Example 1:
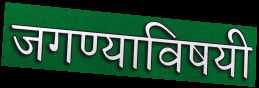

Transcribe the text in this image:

जगण्याविषयी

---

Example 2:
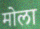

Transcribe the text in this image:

मोला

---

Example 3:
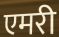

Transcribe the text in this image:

एमरी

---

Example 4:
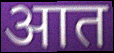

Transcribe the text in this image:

आत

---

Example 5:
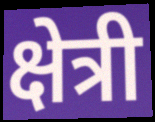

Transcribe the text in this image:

क्षेत्री